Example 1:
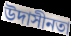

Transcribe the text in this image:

উদাসীনতা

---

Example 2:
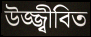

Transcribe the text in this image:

উজ্জ্বীবিত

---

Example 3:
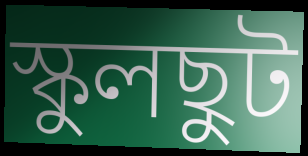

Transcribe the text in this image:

স্কুলছুট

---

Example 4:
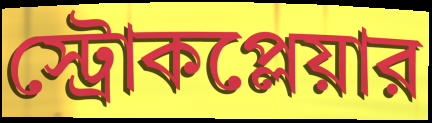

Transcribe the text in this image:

স্ট্রোকপ্লেয়ার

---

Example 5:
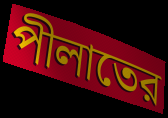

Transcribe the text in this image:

পীলাতের